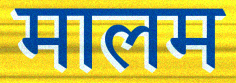
मालम